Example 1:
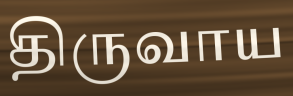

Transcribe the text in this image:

திருவாய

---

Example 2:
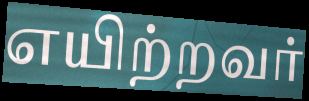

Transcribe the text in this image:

எயிற்றவர்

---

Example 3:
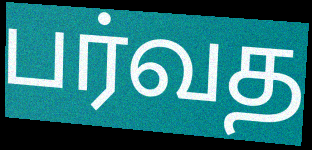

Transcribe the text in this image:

பர்வத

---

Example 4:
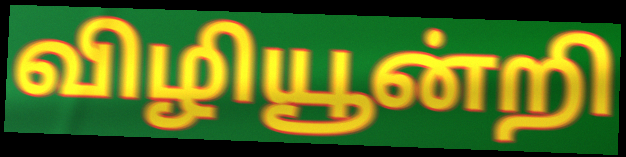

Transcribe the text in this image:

விழியூன்றி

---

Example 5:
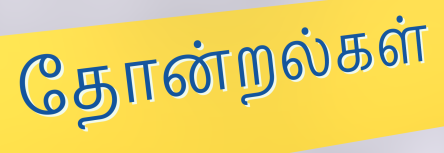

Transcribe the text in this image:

தோன்றல்கள்